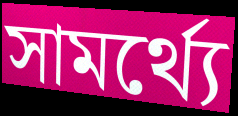
সামর্থ্যে